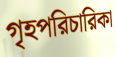
গৃহপরিচারিকা